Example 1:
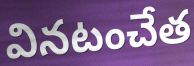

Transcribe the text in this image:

వినటంచేత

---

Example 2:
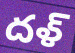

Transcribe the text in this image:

దళ్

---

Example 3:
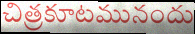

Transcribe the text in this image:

చిత్రకూటమునందు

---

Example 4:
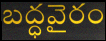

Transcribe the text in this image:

బద్ధవైరం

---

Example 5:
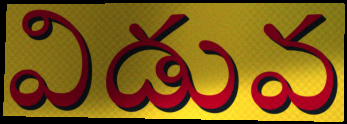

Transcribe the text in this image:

విడువ